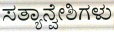
ಸತ್ಯಾನ್ವೇಶಿಗಳು